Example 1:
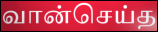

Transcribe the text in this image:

வான்செய்த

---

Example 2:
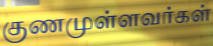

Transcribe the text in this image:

குணமுள்ளவர்கள்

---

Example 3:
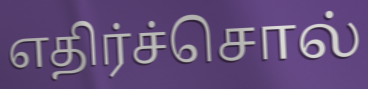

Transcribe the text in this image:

எதிர்ச்சொல்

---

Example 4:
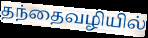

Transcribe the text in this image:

தந்தைவழியில்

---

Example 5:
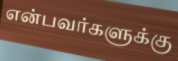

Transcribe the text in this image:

என்பவர்களுக்கு